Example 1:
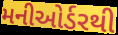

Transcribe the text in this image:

મનીઓર્ડરથી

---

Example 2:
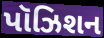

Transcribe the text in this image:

પૉઝિશન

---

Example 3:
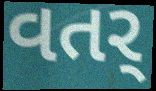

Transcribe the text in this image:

વતર્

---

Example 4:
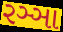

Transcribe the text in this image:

રઞ્ઞા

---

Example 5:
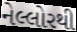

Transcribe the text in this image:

નેલ્લોરથી